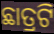
ଛାତ୍ରଟି